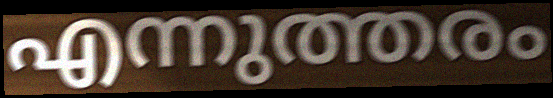
എന്നുത്തരം